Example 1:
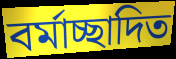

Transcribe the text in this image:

বর্মাচ্ছাদিত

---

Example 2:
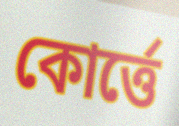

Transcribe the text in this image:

কোর্ত্তে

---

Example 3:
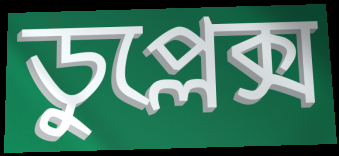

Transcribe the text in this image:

ডুপ্লেক্স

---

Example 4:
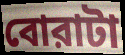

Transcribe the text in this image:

বোরাটা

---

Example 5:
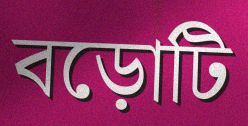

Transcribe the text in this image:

বড়োটি